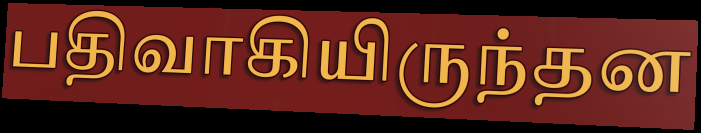
பதிவாகியிருந்தன